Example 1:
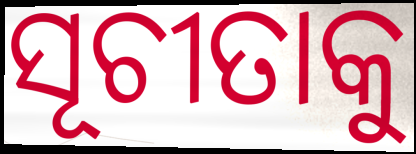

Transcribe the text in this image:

ସୂଚୀତାକୁ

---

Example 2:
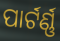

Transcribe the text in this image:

ପାର୍ଟର୍ଣ୍ଣ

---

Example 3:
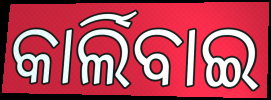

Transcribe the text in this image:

କାର୍ଲିବାଇ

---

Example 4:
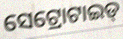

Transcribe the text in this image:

ସେଟ୍ରୋଟାଇଡ୍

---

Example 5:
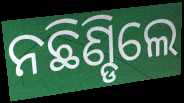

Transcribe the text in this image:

ନଛିଣ୍ଡିଲେ